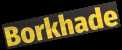
Borkhade